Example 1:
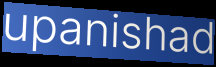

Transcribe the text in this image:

upanishad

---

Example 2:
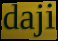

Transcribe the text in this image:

daji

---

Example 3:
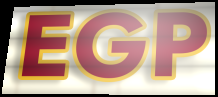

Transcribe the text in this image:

EGP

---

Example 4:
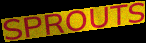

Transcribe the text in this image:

SPROUTS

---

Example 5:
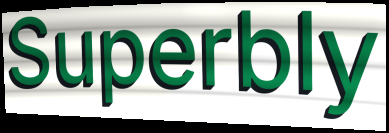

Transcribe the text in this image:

Superbly